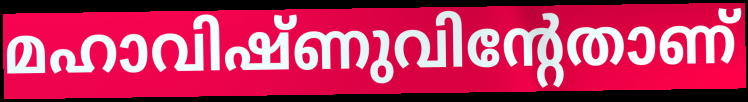
മഹാവിഷ്ണുവിന്റേതാണ്